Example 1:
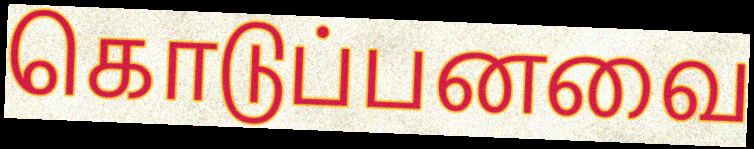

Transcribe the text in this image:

கொடுப்பனவை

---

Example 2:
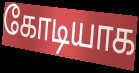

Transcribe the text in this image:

கோடியாக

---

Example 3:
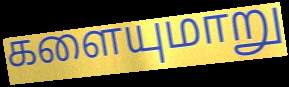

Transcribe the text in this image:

களையுமாறு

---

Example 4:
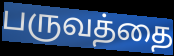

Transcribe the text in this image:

பருவத்தை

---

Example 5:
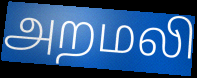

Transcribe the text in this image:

அறமலி